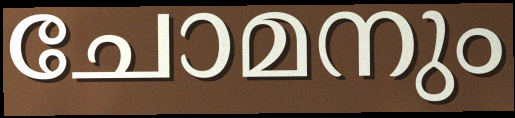
ചോമനും